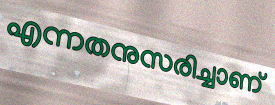
എന്നതനുസരിച്ചാണ്